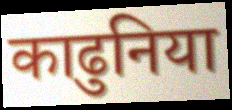
काढुनिया